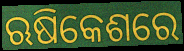
ଋଷିକେଶରେ